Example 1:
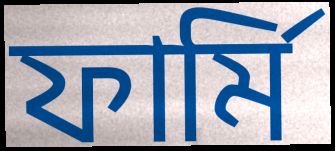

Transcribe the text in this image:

ফার্মি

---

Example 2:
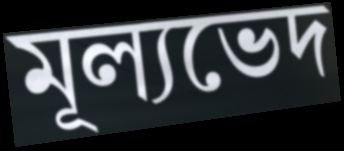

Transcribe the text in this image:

মূল্যভেদ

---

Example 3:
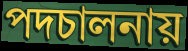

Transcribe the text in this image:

পদচালনায়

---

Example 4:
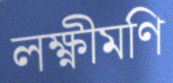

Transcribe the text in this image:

লক্ষ্ণীমণি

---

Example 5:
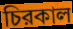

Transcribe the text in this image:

চিরকাল